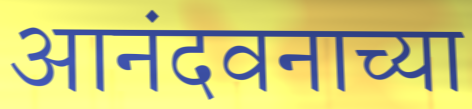
आनंदवनाच्या